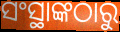
ସଂସ୍ଥାଙ୍କଠାରୁ